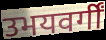
उभयवर्गीं